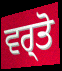
ਵਰ੍ਤੋ